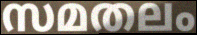
സമതലം